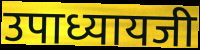
उपाध्यायजी